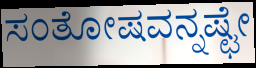
ಸಂತೋಷವನ್ನಷ್ಟೇ